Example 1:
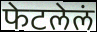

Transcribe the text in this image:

फेटलेलं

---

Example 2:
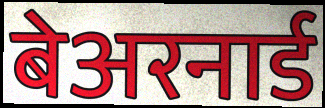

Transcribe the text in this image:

बेअरनार्ड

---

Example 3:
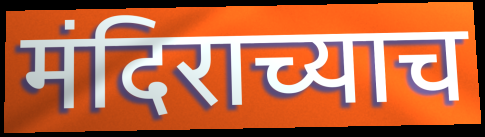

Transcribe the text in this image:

मंदिराच्याच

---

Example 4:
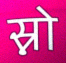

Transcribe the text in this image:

स्नो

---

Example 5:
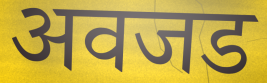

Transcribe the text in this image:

अवजड